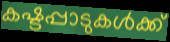
കഷ്ടപ്പാടുകൾക്ക്